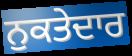
ਨੁਕਤੇਦਾਰ